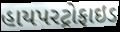
હાયપરટ્રોફાઇડ